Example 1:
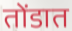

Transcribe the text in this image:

तोंडात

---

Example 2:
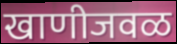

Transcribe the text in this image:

खाणीजवळ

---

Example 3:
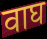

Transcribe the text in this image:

वाघ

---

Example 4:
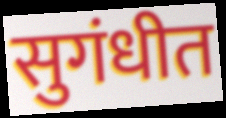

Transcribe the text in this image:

सुगंधीत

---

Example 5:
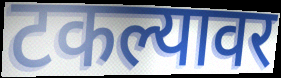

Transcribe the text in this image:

टकल्यावर